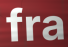
fra